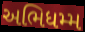
અભિધમ્મ